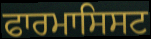
ਫਾਰਮਾਸਿਸਟ